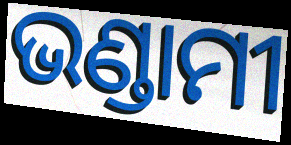
ଭଣ୍ଡାମୀ